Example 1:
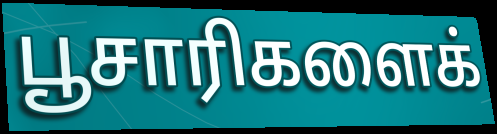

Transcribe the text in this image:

பூசாரிகளைக்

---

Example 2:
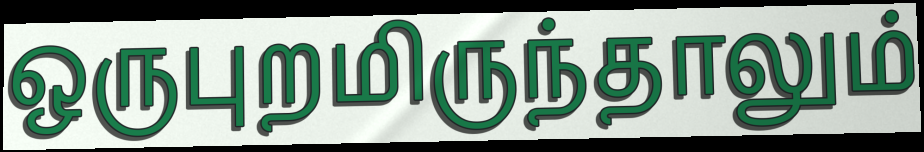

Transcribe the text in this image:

ஒருபுறமிருந்தாலும்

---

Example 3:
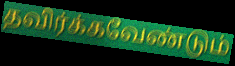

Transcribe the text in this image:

தவிர்க்கவேண்டும்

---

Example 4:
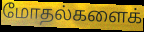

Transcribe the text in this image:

மோதல்களைக்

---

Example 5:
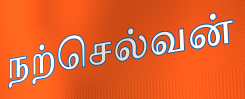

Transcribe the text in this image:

நற்செல்வன்